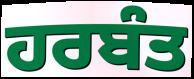
ਹਰਬੰਤ